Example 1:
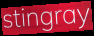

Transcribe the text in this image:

stingray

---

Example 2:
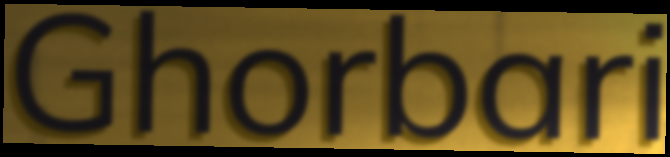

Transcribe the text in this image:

Ghorbari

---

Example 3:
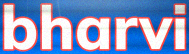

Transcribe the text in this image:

bharvi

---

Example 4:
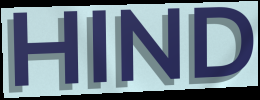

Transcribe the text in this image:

HIND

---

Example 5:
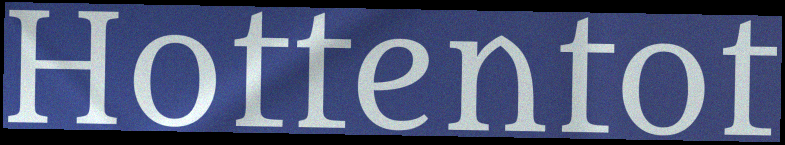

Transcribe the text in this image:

Hottentot